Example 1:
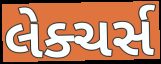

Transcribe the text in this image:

લેક્ચર્સ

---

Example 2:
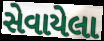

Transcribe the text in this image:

સેવાયેલા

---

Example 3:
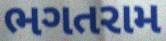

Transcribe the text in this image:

ભગતરામ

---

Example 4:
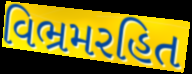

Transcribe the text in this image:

વિભ્રમરહિત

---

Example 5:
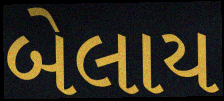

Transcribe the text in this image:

બેલાય